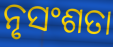
ନୃସଂଶତା